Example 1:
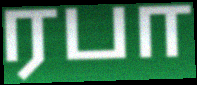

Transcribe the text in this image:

ரபா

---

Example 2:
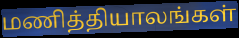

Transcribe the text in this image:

மணித்தியாலங்கள்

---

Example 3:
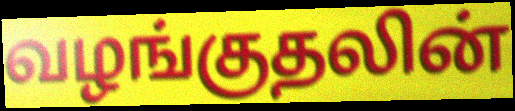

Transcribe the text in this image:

வழங்குதலின்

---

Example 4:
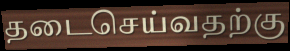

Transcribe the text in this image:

தடைசெய்வதற்கு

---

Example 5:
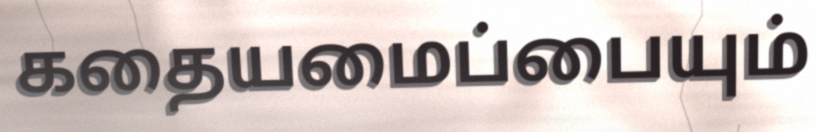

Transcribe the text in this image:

கதையமைப்பையும்